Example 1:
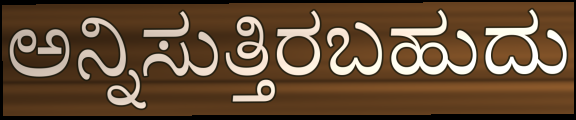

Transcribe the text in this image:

ಅನ್ನಿಸುತ್ತಿರಬಹುದು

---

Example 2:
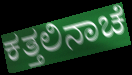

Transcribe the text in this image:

ಕತ್ತಲಿನಾಚೆ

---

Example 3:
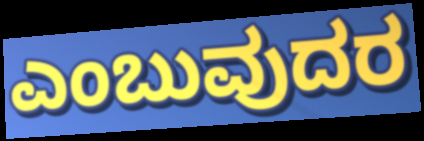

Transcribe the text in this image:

ಎಂಬುವುದರ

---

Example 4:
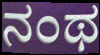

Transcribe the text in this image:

ನಂಥ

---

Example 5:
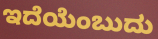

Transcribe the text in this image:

ಇದೆಯೆಂಬುದು